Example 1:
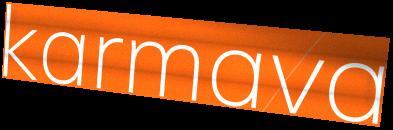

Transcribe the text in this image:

karmava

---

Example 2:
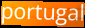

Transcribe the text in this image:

portugal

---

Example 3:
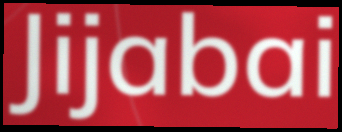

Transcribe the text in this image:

Jijabai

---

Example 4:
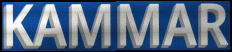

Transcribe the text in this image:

KAMMAR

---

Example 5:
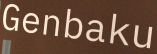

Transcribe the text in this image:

Genbaku